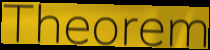
Theorem